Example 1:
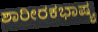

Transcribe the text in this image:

ಶಾರೀರಕಭಾಷ್ಯ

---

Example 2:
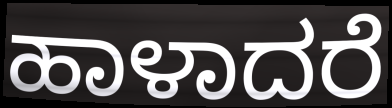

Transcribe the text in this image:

ಹಾಳಾದರೆ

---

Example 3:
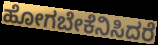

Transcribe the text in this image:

ಹೋಗಬೇಕೆನಿಸಿದರೆ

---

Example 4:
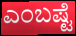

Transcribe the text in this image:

ಎಂಬಷ್ಟೆ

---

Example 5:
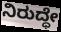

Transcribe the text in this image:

ನಿರುದ್ಧೇ